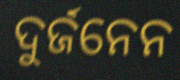
ଦୁର୍ଜନେନ